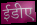
ईडीए